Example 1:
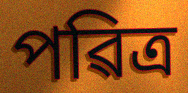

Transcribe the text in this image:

পৱিত্ৰ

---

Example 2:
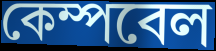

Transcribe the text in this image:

কেম্পবেল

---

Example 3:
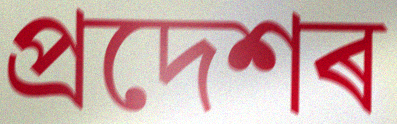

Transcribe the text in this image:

প্ৰদেশৰ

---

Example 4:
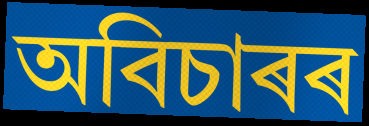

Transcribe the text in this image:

অবিচাৰৰ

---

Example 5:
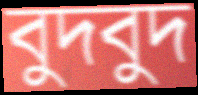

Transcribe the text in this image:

বুদবুদ